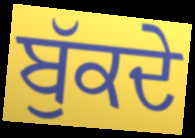
ਬੁੱਕਦੇ